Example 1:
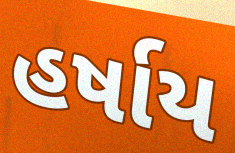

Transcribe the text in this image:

હર્ષાય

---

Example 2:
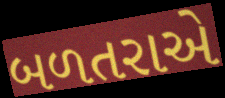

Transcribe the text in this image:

બળતરાએ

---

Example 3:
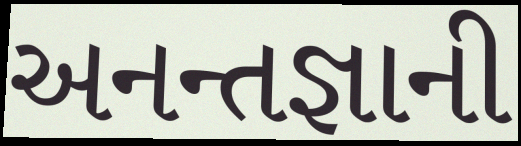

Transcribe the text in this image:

અનન્તજ્ઞાની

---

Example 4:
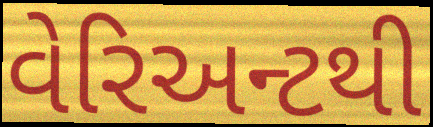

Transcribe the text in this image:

વેરિઅન્ટથી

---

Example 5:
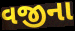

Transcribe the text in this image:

વજીના